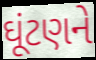
ઘૂંટણને